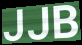
JJB